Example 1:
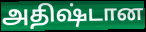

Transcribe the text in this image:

அதிஷ்டான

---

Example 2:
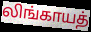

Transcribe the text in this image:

லிங்காயத்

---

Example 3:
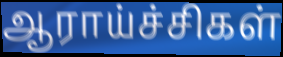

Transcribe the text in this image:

ஆராய்ச்சிகள்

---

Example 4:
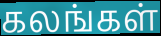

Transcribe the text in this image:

கலங்கள்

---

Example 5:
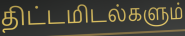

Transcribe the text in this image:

திட்டமிடல்களும்